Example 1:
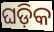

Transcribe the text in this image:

ଘଡ଼ିକ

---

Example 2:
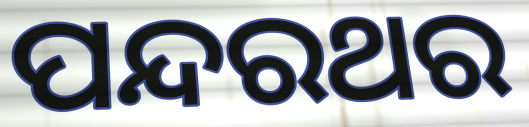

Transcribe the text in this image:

ପନ୍ଦରଥର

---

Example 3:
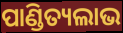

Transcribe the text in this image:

ପାଣ୍ଡିତ୍ୟଲାଭ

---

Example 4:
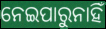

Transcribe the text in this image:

ନେଇପାରୁନାହିଁ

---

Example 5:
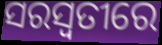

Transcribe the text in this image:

ସରସ୍ୱତୀରେ